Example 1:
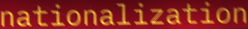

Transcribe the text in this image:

nationalization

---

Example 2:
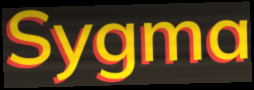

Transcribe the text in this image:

Sygma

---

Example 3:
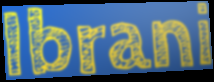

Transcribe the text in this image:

Ibrani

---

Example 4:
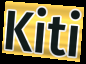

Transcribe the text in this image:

Kiti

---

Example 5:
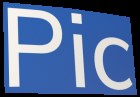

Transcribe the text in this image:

Pic